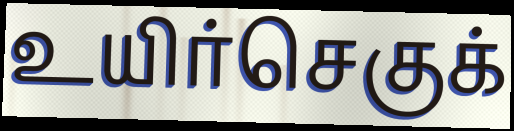
உயிர்செகுக்